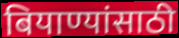
बियाण्यांसाठी